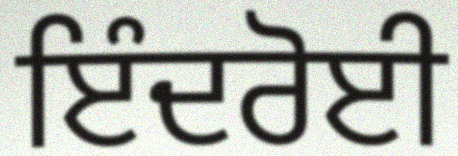
ਇੰਦਰੋਈ